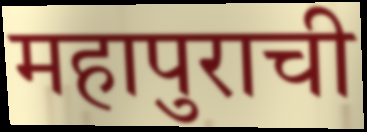
महापुराची